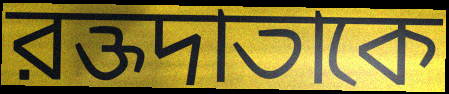
রক্তদাতাকে